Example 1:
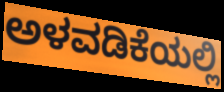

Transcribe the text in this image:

ಅಳವಡಿಕೆಯಲ್ಲಿ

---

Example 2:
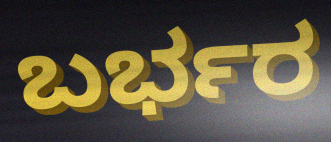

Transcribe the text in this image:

ಬರ್ಭರ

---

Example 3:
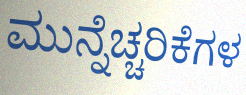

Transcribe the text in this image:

ಮುನ್ನೆಚ್ಚರಿಕೆಗಳ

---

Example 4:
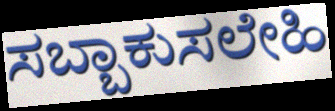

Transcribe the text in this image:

ಸಬ್ಬಾಕುಸಲೇಹಿ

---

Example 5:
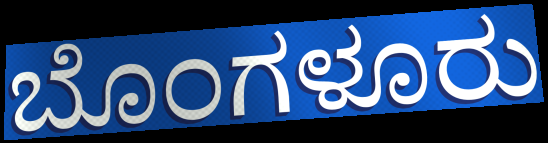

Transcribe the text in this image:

ಬೊಂಗಳೂರು